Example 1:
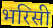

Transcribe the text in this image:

भरिसी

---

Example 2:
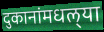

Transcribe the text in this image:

दुकानांमधल्या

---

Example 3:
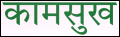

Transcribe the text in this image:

कामसुख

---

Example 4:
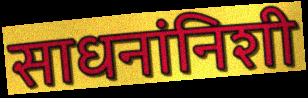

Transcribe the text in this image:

साधनांनिशी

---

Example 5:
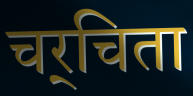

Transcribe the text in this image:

चर्चिता